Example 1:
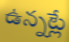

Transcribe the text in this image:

ఉన్నట్లే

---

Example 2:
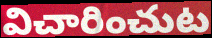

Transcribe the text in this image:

విచారించుట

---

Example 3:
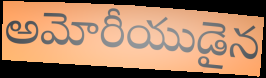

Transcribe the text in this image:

అమోరీయుడైన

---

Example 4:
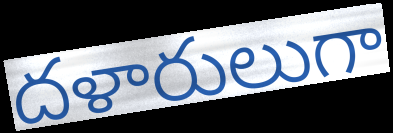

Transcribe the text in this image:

దళారులుగా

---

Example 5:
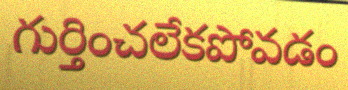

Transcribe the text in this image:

గుర్తించలేకపోవడం